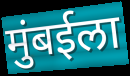
मुंबईला